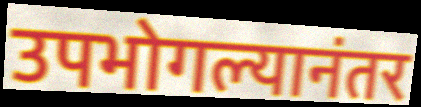
उपभोगल्यानंतर